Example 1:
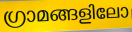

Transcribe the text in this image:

ഗ്രാമങ്ങളിലോ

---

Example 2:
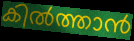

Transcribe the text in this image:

കിൽത്താൻ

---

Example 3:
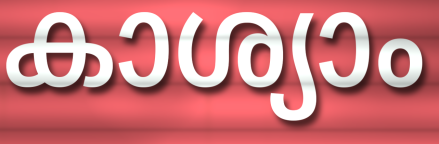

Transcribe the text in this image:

കാശ്യാം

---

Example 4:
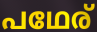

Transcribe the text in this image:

പഥേര്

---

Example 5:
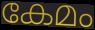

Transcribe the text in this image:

കേമം